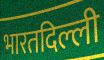
भारतदिल्ली